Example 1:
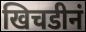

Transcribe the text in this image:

खिचडीनं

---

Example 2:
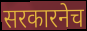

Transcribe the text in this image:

सरकारनेच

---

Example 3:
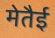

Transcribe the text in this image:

मेतैई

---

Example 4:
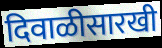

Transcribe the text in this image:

दिवाळीसारखी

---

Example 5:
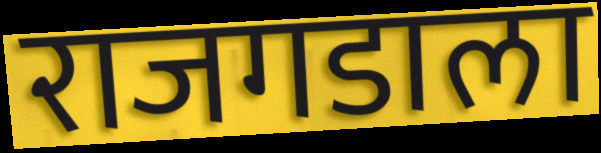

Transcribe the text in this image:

राजगडाला